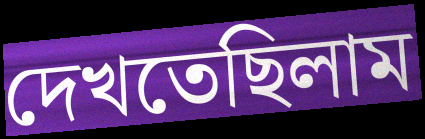
দেখতেছিলাম